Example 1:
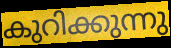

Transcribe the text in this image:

കുറിക്കുന്നു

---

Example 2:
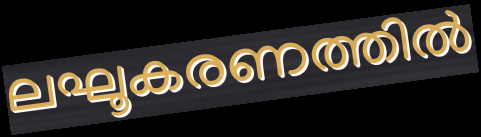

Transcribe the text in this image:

ലഘൂകരണത്തിൽ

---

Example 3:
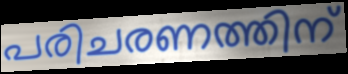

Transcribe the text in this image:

പരിചരണത്തിന്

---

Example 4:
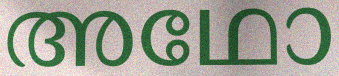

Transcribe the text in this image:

അഥോ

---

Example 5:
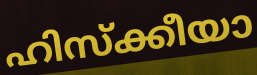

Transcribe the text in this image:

ഹിസ്ക്കീയാ